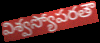
విశ్వస్యోపరతౌ